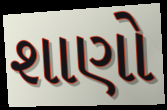
શાણો